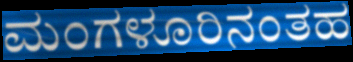
ಮಂಗಳೂರಿನಂತಹ